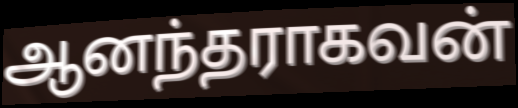
ஆனந்தராகவன்